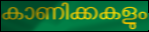
കാണിക്കകളും